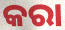
କରା